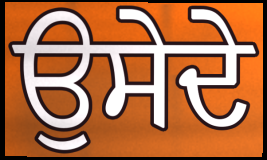
ਉਸੇਦੇ